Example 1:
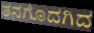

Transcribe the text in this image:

ತನಗೊದಗಿದ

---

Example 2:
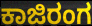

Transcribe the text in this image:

ಕಾಜಿರಂಗ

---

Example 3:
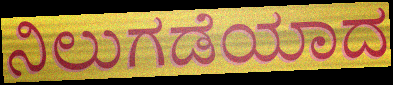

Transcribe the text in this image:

ನಿಲುಗಡೆಯಾದ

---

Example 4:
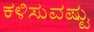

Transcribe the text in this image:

ಕಳಿಸುವಷ್ಟು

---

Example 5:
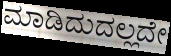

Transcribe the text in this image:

ಮಾಡಿದುದಲ್ಲದೇ